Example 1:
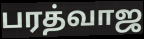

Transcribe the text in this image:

பரத்வாஜ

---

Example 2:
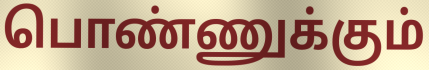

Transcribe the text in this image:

பொண்ணுக்கும்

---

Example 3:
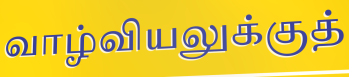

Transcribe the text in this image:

வாழ்வியலுக்குத்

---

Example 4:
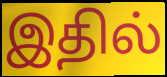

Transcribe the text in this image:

இதில்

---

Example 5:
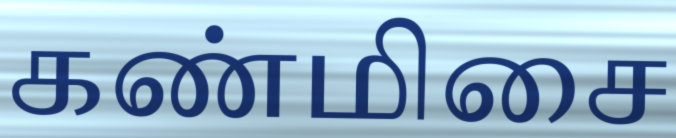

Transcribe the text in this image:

கண்மிசை